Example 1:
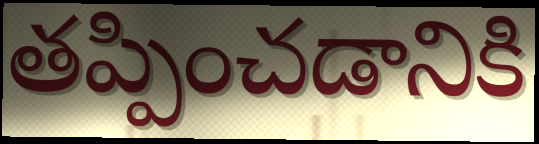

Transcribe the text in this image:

తప్పించడానికి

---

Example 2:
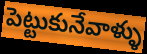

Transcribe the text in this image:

పెట్టుకునేవాళ్ళు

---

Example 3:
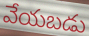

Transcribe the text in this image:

వేయబడు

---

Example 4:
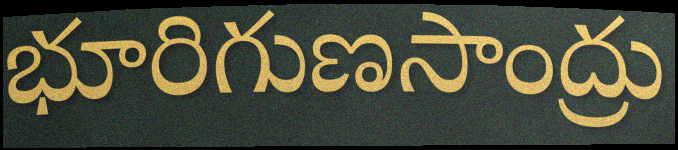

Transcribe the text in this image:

భూరిగుణసాంద్రు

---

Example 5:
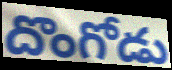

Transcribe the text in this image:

దొంగోడు